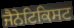
ਜੈਨੇਟਿਕਿਸਟ